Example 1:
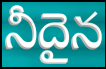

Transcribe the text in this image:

నీదైన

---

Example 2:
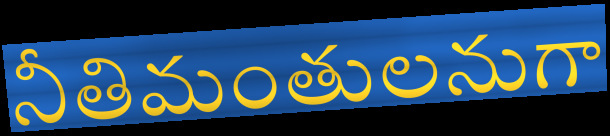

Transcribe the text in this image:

నీతిమంతులనుగా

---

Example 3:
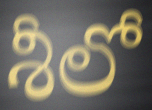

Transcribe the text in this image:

శీలో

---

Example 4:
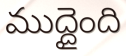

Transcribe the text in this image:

ముద్దైంది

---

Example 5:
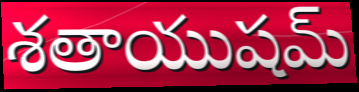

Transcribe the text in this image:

శతాయుషమ్